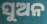
ସୁଅନ